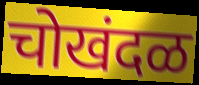
चोखंदळ